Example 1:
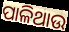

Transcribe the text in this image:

ପାଳିଥାଉ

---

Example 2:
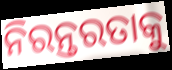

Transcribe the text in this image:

ନିରନ୍ତରତାକୁ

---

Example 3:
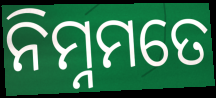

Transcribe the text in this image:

ନିମ୍ନମତେ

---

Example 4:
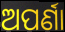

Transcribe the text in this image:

ଅପର୍ଣା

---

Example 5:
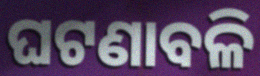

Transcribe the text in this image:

ଘଟଣାବଳି